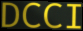
DCCI